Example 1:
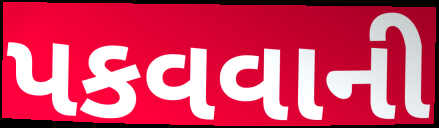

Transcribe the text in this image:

પકવવાની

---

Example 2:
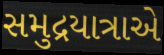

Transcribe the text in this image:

સમુદ્રયાત્રાએ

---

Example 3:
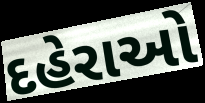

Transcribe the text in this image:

દહેરાઓ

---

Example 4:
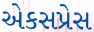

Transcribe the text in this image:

એકસપ્રેસ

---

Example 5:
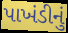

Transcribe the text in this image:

પાખંડીનું